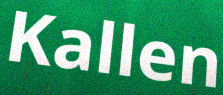
Kallen